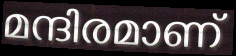
മന്ദിരമാണ്